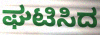
ಘಟಿಸಿದ